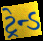
ટ્રેન્ડ